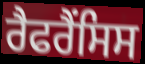
ਰੈਫਰੈਂਸਿਸ